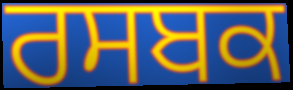
ਰਸਬਕ